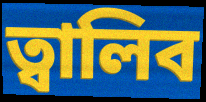
ত্বালিব